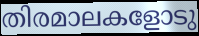
തിരമാലകളോടു